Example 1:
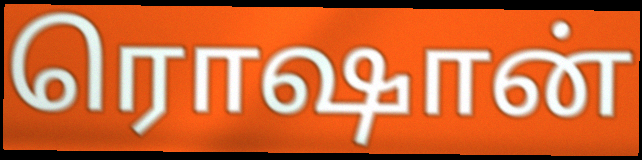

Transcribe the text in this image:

ரொஷான்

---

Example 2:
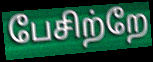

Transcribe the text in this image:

பேசிற்றே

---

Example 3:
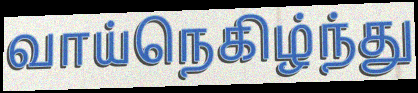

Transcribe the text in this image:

வாய்நெகிழ்ந்து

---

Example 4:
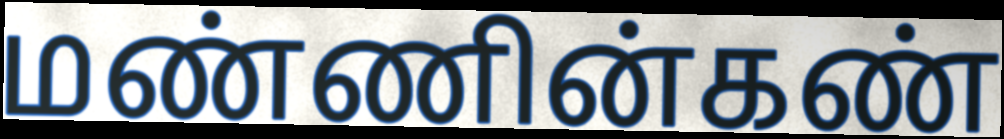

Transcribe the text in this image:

மண்ணின்கண்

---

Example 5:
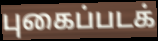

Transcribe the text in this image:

புகைப்படக்